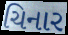
ચિનાર